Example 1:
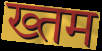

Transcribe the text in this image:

ख्तम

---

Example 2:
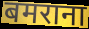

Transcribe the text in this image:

बमराना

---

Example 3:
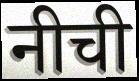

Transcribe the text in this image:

नीची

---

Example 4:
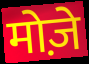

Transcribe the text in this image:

मोज़े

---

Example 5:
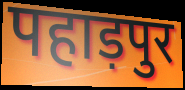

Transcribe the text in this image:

पहाड़पुर